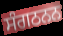
ਸੰਗਠਨਨ